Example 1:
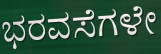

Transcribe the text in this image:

ಭರವಸೆಗಳೇ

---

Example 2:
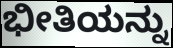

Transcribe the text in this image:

ಭೀತಿಯನ್ನು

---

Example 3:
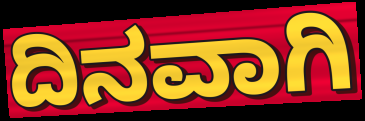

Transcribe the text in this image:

ದಿನವಾಗಿ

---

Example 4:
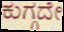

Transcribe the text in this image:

ಕುಗ್ಗದೇ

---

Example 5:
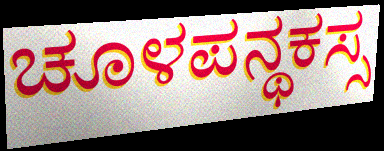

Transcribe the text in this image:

ಚೂಳಪನ್ಥಕಸ್ಸ